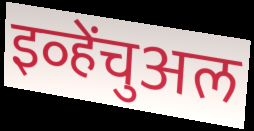
इव्हेंचुअल